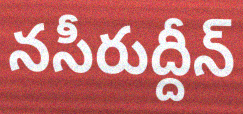
నసీరుద్దీన్